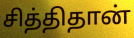
சித்திதான்